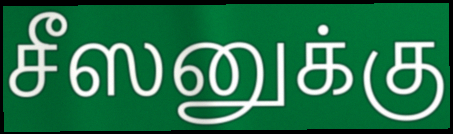
சீஸனுக்கு